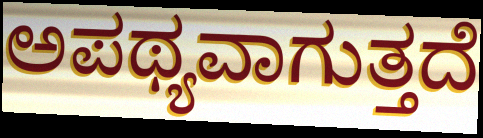
ಅಪಥ್ಯವಾಗುತ್ತದೆ